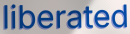
liberated